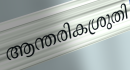
ആന്തരികശ്രുതി